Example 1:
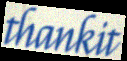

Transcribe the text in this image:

thankit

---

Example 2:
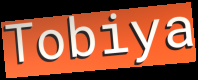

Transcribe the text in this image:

Tobiya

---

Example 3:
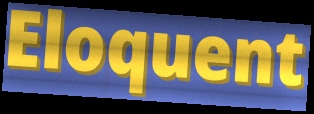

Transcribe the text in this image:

Eloquent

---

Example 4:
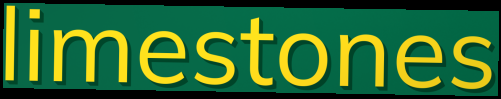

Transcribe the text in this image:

limestones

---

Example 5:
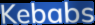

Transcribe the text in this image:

Kebabs